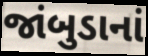
જાંબુડાનાં